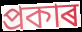
প্ৰকাৰ